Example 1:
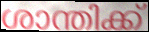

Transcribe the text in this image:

ശാന്തിക്ക്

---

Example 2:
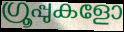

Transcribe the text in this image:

ഗ്രൂപ്പുകളോ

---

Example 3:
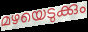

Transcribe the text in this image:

മഴയെടുക്കും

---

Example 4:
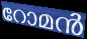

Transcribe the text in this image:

റോമൻ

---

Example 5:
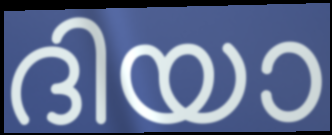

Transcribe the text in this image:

ദിയാ